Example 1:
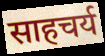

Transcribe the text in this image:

साहचर्य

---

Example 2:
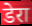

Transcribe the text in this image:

डेरा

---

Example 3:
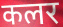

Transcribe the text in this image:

कलर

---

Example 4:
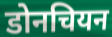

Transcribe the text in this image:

डोनचियन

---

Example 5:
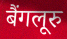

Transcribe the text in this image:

बैंगलूरु